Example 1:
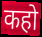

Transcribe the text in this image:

कहो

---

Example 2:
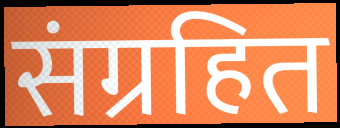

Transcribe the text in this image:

संग्रहित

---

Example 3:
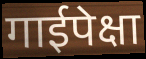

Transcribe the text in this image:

गाईपेक्षा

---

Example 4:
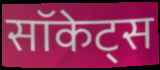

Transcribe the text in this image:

सॉकेट्स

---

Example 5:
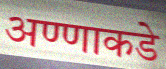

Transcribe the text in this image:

अण्णाकडे